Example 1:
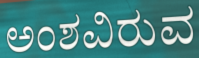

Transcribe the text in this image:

ಅಂಶವಿರುವ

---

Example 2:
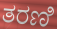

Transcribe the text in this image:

ತರಣಿ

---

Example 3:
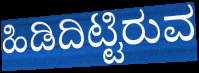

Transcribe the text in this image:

ಹಿಡಿದಿಟ್ಟಿರುವ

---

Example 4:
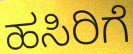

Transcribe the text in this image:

ಹಸಿರಿಗೆ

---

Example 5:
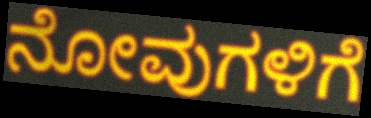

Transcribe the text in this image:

ನೋವುಗಳಿಗೆ